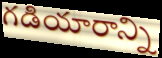
గడియారాన్ని